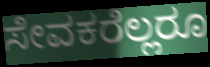
ಸೇವಕರೆಲ್ಲರೂ